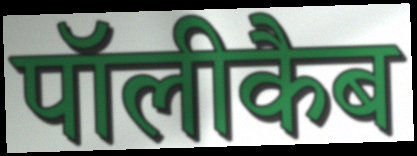
पॉलीकैब